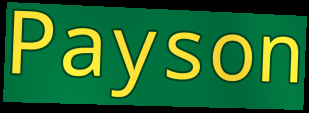
Payson